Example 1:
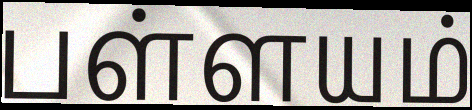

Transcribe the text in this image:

பள்ளயம்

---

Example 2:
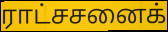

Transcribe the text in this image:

ராட்சசனைக்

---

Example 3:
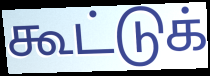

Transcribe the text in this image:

கூட்டுக்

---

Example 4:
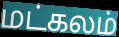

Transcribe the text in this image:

மட்கலம்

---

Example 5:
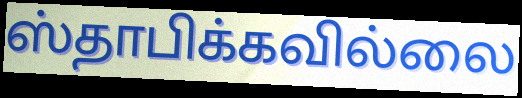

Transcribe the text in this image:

ஸ்தாபிக்கவில்லை